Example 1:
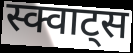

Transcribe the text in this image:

स्क्वाट्स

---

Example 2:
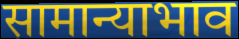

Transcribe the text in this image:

सामान्याभाव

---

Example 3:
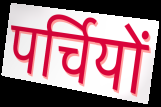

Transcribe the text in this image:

पर्चियों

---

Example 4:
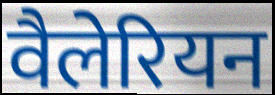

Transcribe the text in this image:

वैलेरियन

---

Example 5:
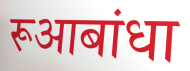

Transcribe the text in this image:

रूआबांधा